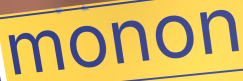
monon